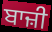
ਬਾਜ਼ੀ